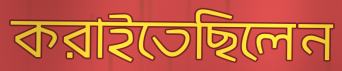
করাইতেছিলেন